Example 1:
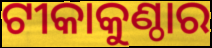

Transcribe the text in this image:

ଟୀକାକୁଣ୍ଠାର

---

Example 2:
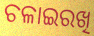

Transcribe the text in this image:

ଚଳାଇରଖି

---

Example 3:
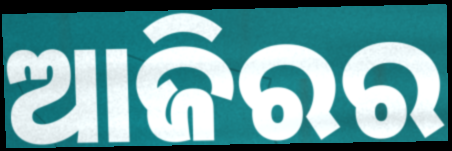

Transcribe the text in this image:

ଆଜିରର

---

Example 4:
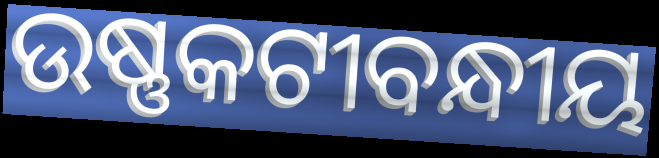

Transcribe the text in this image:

ଉଷ୍ଣକଟୀବନ୍ଧୀୟ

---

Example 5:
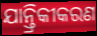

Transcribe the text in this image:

ଯାନ୍ତ୍ରିକୀକରଣ